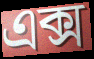
এক্স